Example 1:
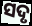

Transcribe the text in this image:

ସଦୃ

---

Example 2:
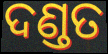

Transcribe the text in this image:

ଦଣ୍ଡତ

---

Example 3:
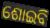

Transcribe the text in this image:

ଶୋଇବି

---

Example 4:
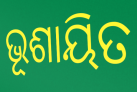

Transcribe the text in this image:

ଭୂଶାୟିତ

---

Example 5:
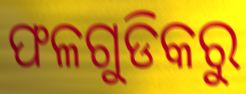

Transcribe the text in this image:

ଫଳଗୁଡିକରୁ